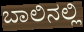
ಬಾಲಿನಲ್ಲಿ